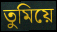
তুমিয়ে